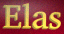
Elas